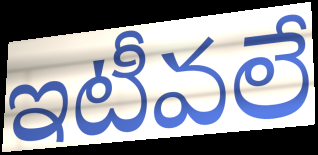
ఇటీవలే